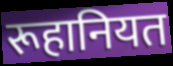
रूहानियत